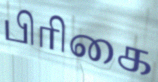
பிரிகை